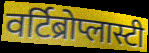
वर्टिब्रोप्लास्टी